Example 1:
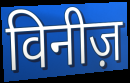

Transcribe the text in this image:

विनीज़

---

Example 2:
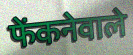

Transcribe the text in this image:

फेंकनेवाले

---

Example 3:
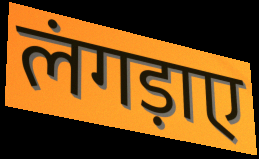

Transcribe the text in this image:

लंगड़ाए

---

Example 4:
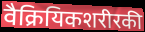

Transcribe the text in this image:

वैक्रियिकशरीरकी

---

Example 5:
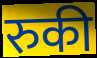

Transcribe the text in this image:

रुकी